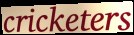
cricketers